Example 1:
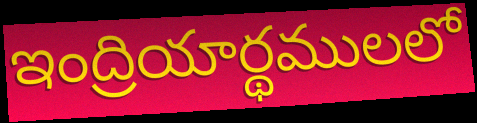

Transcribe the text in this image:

ఇంద్రియార్థములలో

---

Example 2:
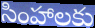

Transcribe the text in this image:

సింహాలకు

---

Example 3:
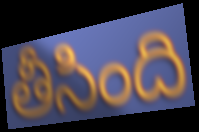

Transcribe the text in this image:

తీసింది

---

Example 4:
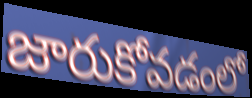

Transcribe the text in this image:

జారుకోవడంలో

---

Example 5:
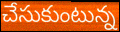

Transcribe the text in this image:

చేసుకుంటున్న